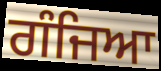
ਗੰਜਿਆ